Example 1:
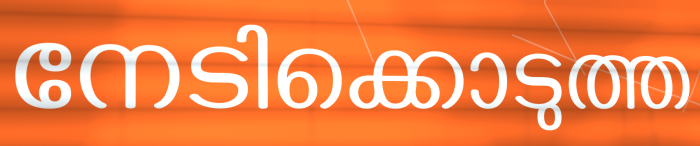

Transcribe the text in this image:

നേടിക്കൊടുത്ത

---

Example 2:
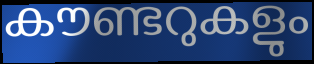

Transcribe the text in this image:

കൗണ്ടറുകളും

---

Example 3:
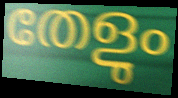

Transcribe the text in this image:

തേളും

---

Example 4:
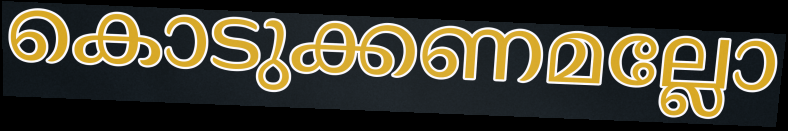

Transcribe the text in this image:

കൊടുക്കണമല്ലോ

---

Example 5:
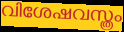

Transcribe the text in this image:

വിശേഷവസ്ത്രം